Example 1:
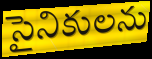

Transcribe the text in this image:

సైనికులను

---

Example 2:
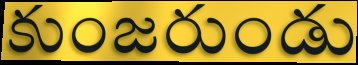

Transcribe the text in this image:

కుంజరుండు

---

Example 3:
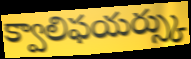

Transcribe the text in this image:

క్వాలిఫయర్స్కు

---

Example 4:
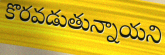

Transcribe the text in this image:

కొరవడుతున్నాయని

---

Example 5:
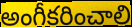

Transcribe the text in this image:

అంగీకరించాలి